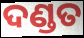
ଦଣ୍ଡତ